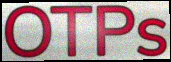
OTPs